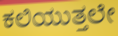
ಕಲಿಯುತ್ತಲೇ